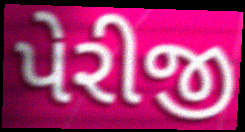
પેરીજી